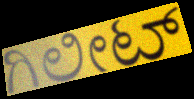
ಗಿಲೀಟ್